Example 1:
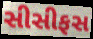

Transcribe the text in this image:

સીસીફસ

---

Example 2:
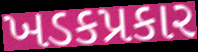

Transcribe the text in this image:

ખડકપ્રકાર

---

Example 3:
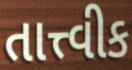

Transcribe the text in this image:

તાત્ત્વીક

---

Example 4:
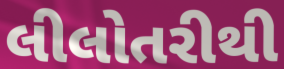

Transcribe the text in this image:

લીલોતરીથી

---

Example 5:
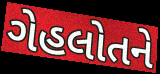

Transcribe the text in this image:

ગેહલોતને